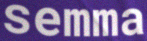
semma